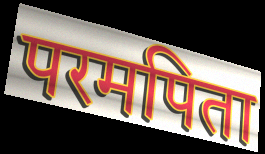
परमपिता